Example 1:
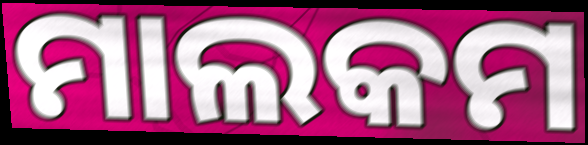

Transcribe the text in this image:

ମାଲକମ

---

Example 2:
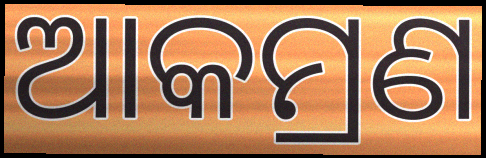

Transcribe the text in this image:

ଆକମ୍ରଣ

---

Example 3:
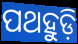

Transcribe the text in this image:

ପଥହୁଡ଼ି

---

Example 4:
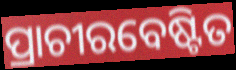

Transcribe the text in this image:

ପ୍ରାଚୀରବେଷ୍ଟିତ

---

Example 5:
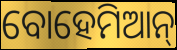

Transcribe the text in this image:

ବୋହେମିଆନ୍